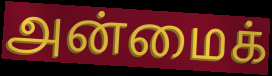
அன்மைக்